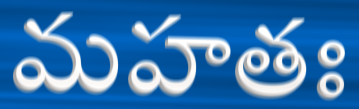
మహతః